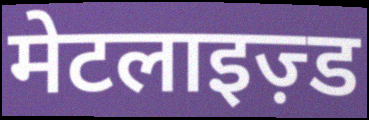
मेटलाइज़्ड